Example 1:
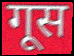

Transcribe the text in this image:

गूस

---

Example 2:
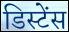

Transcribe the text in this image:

डिस्टेंस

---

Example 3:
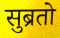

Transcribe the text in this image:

सुब्रतो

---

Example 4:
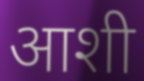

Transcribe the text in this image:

आशी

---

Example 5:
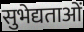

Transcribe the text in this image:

सुभेद्यताओं